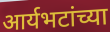
आर्यभटांच्या